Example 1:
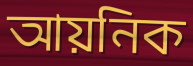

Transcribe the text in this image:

আয়নিক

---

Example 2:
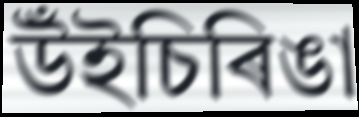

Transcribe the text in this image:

উঁইচিৰিঙা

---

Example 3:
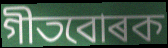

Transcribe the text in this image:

গীতবোৰক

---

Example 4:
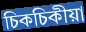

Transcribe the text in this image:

চিকচিকীয়া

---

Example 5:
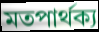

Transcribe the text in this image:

মতপাৰ্থক্য